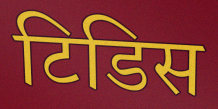
टिडिस